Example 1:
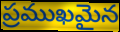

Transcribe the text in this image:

ప్రముఖమైన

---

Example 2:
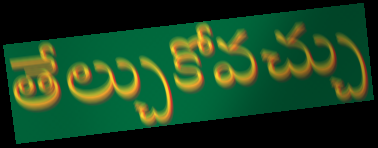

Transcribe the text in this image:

తేల్చుకోవచ్చు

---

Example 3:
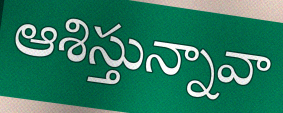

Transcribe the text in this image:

ఆశిస్తున్నావా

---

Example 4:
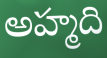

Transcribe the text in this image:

అహ్మది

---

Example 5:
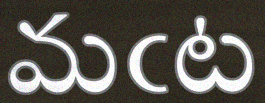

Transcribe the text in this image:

మఁట